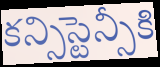
కన్సిస్టెన్సీకి